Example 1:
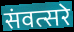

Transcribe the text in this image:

संवत्सरे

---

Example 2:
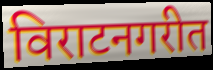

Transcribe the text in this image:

विराटनगरीत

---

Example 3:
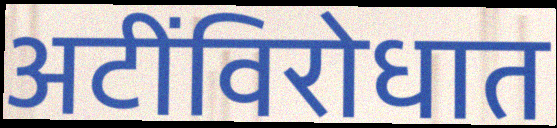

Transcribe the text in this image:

अटींविरोधात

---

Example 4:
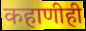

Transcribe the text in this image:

कहाणीही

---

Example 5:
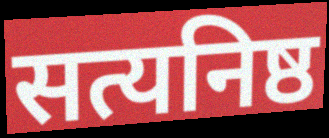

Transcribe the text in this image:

सत्यनिष्ठ